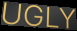
UGLY